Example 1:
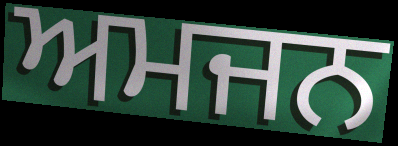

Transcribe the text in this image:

ਅਮਜਨ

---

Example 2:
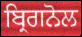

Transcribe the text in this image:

ਬ੍ਰਿਗਨੋਲ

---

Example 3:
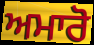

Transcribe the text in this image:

ਅਮਾਰੋ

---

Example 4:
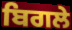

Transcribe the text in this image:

ਬਿਗਲੇ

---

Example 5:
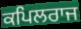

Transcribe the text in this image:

ਕਪਿਲਰਾਜ